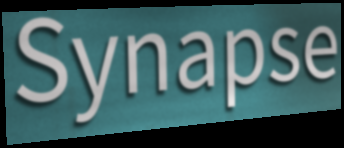
Synapse